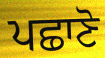
ਪਛਾਣੋ